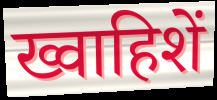
ख्वाहिशें